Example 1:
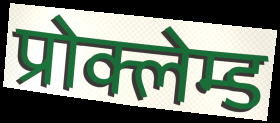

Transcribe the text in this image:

प्रोक्लेम्ड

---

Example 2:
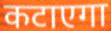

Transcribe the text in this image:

कटाएगा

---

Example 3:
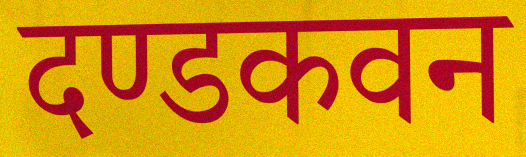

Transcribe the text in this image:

दण्डकवन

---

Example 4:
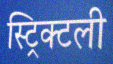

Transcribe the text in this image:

स्ट्रिक्टली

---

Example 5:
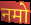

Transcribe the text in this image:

नमो